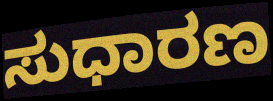
ಸುಧಾರಣ